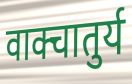
वाक्चातुर्य